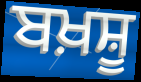
ਬਖ਼ਸ਼ੂ